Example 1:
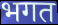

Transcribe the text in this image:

भगत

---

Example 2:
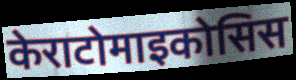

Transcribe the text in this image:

केराटोमाइकोसिस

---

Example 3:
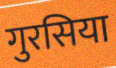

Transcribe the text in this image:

गुरसिया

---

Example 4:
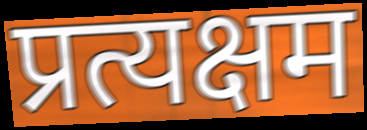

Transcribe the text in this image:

प्रत्यक्षम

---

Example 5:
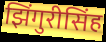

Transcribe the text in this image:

झिंगुरीसिंह